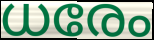
ധരേം